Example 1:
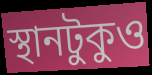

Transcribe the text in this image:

স্থানটুকুও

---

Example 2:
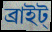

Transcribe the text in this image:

ব্রাইট্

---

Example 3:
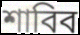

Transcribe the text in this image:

শাবিব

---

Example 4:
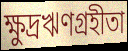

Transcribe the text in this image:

ক্ষুদ্রঋণগ্রহীতা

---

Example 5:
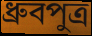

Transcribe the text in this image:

ধ্রুবপুত্র